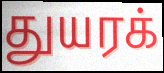
துயரக்